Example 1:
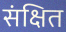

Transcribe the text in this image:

संक्षित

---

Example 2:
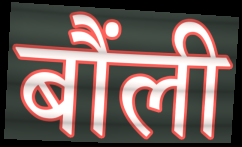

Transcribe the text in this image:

बौंली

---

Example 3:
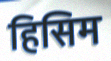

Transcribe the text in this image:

हिसिम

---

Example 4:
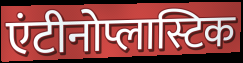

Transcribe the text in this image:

एंटीनोप्लास्टिक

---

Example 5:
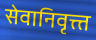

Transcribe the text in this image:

सेवानिवृत्त्त